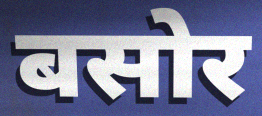
बसोर